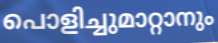
പൊളിച്ചുമാറ്റാനും